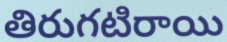
తిరుగటిరాయి